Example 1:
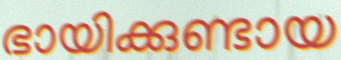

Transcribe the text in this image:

ഭായിക്കുണ്ടായ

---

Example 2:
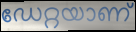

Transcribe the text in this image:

ഡേറ്റയാണ്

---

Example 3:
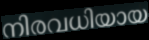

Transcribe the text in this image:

നിരവധിയായ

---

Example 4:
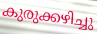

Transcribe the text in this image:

കുരുക്കഴിച്ചു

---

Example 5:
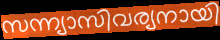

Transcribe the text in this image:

സന്ന്യാസിവര്യനായി